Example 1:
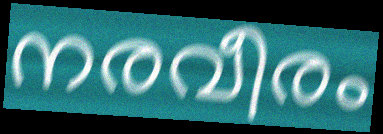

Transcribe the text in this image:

നരവീരം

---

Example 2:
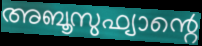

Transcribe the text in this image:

അബൂസുഫ്യാന്റെ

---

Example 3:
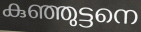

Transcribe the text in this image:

കുഞ്ഞുട്ടനെ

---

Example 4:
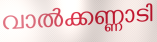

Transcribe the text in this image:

വാൽക്കണ്ണാടി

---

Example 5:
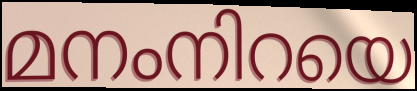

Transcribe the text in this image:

മനംനിറയെ